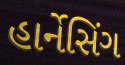
હાર્નેસિંગ